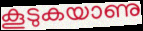
കൂടുകയാണു